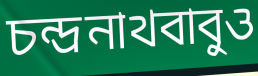
চন্দ্রনাথবাবুও